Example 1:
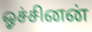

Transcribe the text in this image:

ஓச்சினன்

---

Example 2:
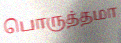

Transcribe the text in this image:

பொருத்தமா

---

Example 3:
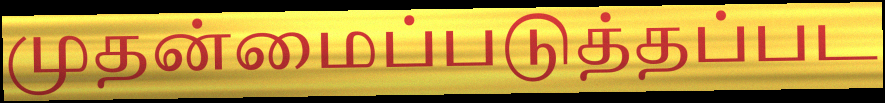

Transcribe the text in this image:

முதன்மைப்படுத்தப்பட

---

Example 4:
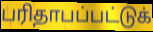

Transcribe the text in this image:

பரிதாபப்பட்டுக்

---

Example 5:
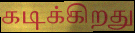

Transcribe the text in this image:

கடிக்கிறது